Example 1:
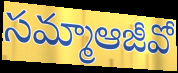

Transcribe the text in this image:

సమ్మాఆజీవో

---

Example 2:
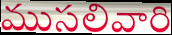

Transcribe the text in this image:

ముసలివారి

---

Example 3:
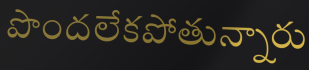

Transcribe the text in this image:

పొందలేకపోతున్నారు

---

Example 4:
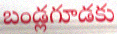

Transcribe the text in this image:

బండ్లగూడకు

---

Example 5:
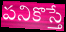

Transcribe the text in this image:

పనికొస్తే